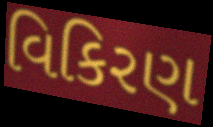
વિકિરણ